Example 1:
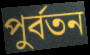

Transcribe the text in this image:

পুর্বতন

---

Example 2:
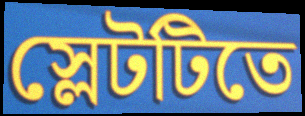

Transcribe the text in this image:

স্লেটটিতে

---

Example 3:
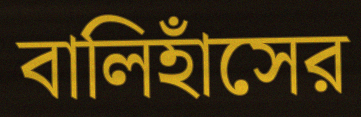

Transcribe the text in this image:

বালিহাঁসের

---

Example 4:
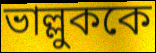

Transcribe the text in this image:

ভাল্লুককে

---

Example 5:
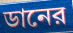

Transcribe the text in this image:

ডানের